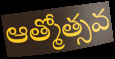
ఆత్మోత్సవ